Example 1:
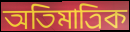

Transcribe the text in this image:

অতিমাত্রিক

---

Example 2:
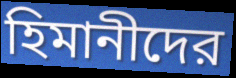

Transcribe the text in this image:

হিমানীদের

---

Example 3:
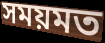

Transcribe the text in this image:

সময়মত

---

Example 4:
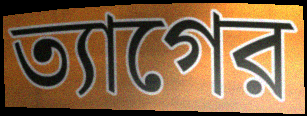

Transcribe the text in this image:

ত্যাগের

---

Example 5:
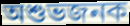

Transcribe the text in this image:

অশুভজনক